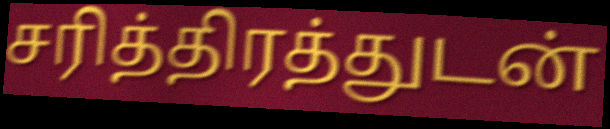
சரித்திரத்துடன்